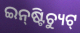
ଇନ୍‌ଷ୍ଟିଚ୍ୟୁଟ୍